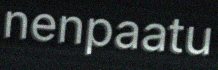
nenpaatu